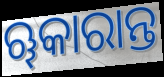
ୠକାରାନ୍ତ